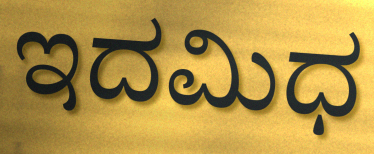
ಇದಮಿಧ